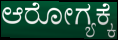
ಆರೋಗ್ಯಕ್ಕೆ